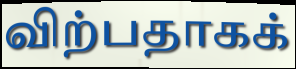
விற்பதாகக்